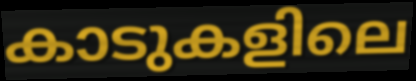
കാടുകളിലെ